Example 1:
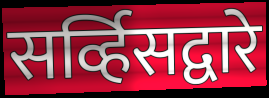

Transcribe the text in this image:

सर्व्हिसद्वारे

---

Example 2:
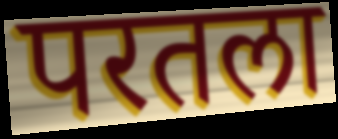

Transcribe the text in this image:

परतला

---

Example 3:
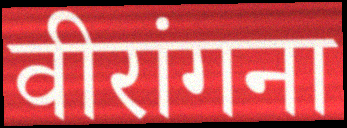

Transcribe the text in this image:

वीरांगना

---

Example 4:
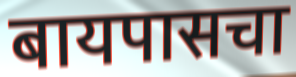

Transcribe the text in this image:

बायपासचा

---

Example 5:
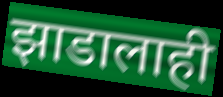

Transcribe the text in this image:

झाडालाही